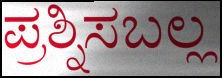
ಪ್ರಶ್ನಿಸಬಲ್ಲ